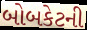
બોબકેટની